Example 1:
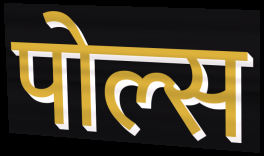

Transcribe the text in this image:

पोल्‍स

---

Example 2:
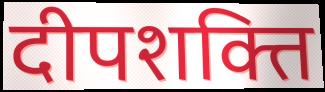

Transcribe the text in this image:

दीपशक्ति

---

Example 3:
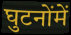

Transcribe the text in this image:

घुटनोंमें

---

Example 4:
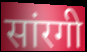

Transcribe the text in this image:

सांरगी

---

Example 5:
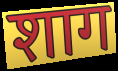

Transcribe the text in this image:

शाग